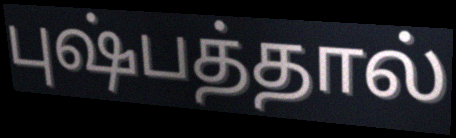
புஷ்பத்தால்